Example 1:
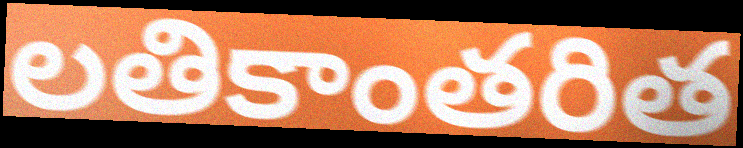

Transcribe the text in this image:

లతికాంతరిత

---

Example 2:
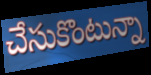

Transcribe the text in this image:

చేసుకొంటున్నా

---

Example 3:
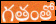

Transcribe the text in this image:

గతంతో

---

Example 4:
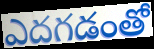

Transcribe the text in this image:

ఎదగడంతో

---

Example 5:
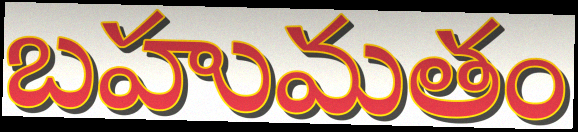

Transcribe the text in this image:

బహుమతం